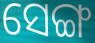
ସେଙ୍ଗ